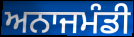
ਅਨਾਜਮੰਡੀ